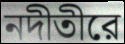
নদীতীরে